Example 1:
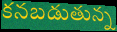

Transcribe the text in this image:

కనబడుతున్న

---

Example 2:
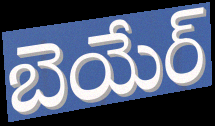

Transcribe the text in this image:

బెయేర్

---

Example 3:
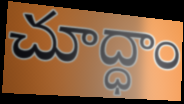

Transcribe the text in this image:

చూద్ధాం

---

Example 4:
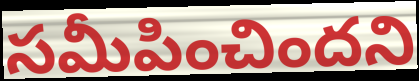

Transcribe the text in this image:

సమీపించిందని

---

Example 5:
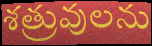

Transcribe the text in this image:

శత్రువులను